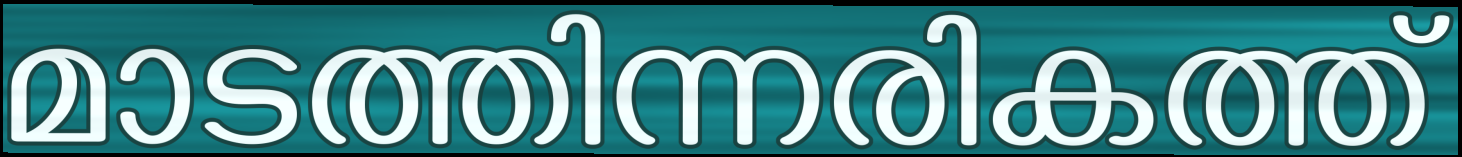
മാടത്തിന്നരികത്ത്